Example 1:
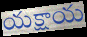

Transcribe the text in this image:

యక్షాయ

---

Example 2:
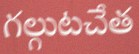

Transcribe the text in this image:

గల్గుటచేత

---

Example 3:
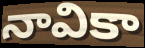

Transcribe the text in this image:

నావికా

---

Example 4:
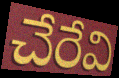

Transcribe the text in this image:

చేరేవి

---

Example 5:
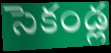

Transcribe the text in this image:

సెకండ్ల